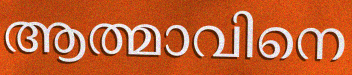
ആത്മാവിനെ